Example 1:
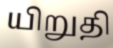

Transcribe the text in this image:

யிறுதி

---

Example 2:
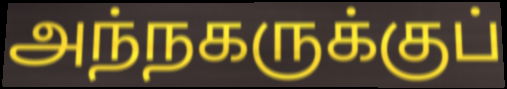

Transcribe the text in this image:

அந்நகருக்குப்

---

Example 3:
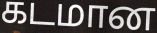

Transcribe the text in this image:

கடமான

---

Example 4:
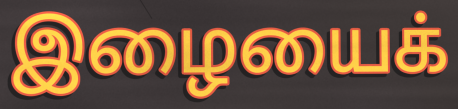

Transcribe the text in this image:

இழையைக்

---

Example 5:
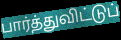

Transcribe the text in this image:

பார்த்துவிட்டுப்